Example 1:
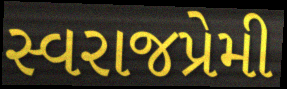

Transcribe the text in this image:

સ્વરાજપ્રેમી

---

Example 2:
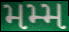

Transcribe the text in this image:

મમ્મ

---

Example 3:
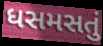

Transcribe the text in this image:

ધસમસતું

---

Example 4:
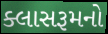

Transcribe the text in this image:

ક્લાસરૂમનો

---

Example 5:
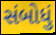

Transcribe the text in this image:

સંબોધું